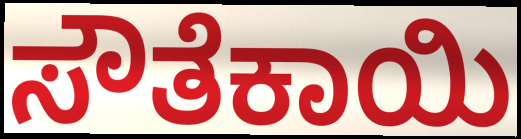
ಸೌತೆಕಾಯಿ